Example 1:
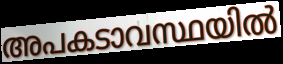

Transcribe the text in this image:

അപകടാവസ്ഥയിൽ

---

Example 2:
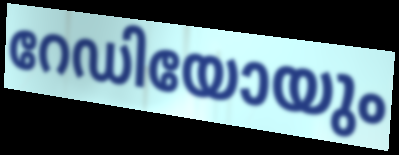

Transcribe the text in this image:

റേഡിയോയും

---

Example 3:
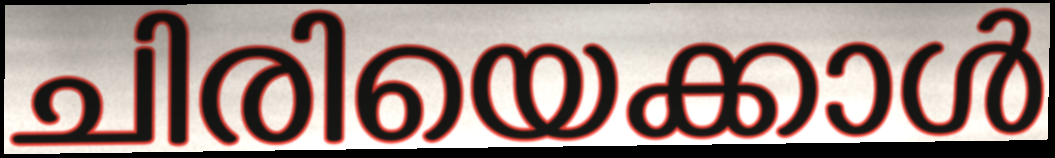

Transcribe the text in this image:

ചിരിയെക്കാൾ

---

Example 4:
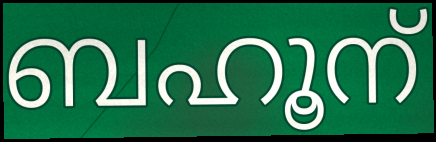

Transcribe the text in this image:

ബഹൂന്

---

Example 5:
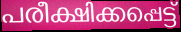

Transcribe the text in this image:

പരീക്ഷിക്കപ്പെട്ട്